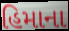
હિમાના